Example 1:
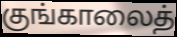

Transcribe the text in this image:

குங்காலைத்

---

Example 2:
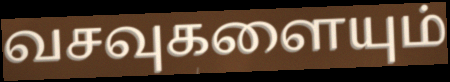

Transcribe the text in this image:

வசவுகளையும்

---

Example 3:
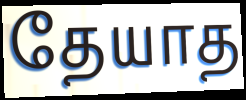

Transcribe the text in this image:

தேயாத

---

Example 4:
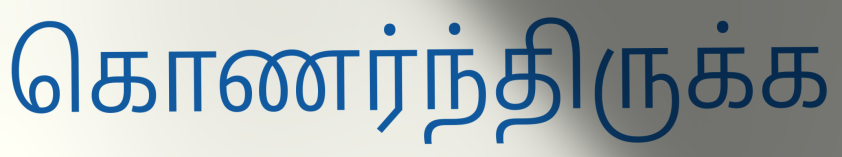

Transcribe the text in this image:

கொணர்ந்திருக்க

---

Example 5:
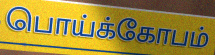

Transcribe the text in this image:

பொய்க்கோபம்